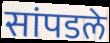
सांपडले